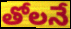
తోలనే